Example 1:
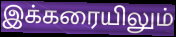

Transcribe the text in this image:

இக்கரையிலும்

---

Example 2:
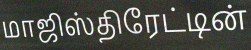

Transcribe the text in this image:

மாஜிஸ்திரேட்டின்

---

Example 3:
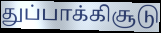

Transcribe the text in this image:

துப்பாக்கிசூடு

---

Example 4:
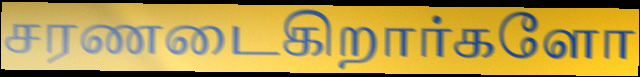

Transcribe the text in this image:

சரணடைகிறார்களோ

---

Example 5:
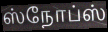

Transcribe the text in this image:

ஸ்நோப்ஸ்